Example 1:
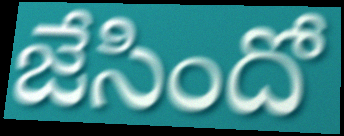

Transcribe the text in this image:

జేసిందో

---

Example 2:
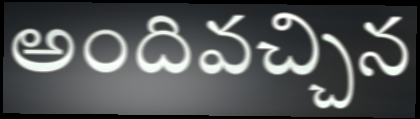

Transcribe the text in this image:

అందివచ్చిన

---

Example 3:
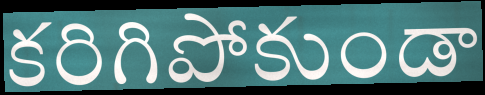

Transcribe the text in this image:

కరిగిపోకుండా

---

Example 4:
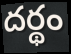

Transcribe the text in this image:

దర్థం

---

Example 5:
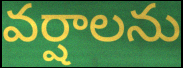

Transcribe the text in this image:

వర్షాలను